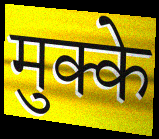
मुक्‍के